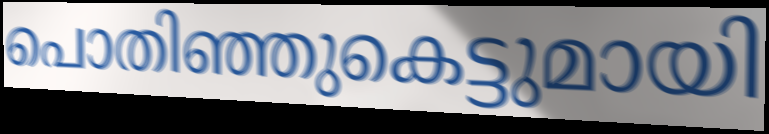
പൊതിഞ്ഞുകെട്ടുമായി